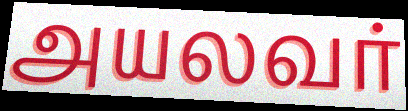
அயலவர்